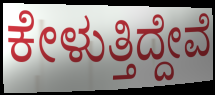
ಕೇಳುತ್ತಿದ್ದೇವೆ